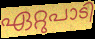
ഏറ്റുപാടി